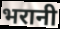
भरानी